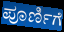
ಪೂರ್ಣಿಗೆ